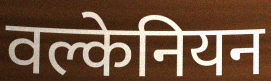
वल्केनियन